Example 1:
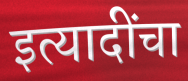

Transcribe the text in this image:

इत्यादींचा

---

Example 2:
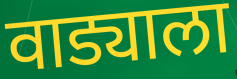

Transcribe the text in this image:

वाड्याला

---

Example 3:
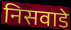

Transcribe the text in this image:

निसवाडे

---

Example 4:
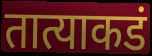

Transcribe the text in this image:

तात्याकडं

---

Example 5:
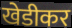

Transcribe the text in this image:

खेडीकर